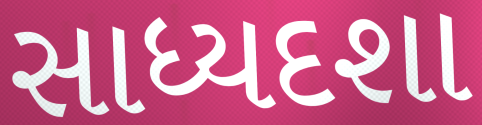
સાધ્યદશા